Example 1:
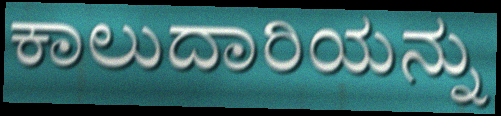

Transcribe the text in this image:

ಕಾಲುದಾರಿಯನ್ನು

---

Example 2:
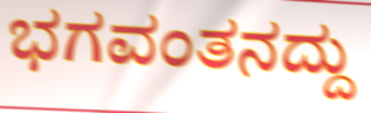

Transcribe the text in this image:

ಭಗವಂತನದ್ದು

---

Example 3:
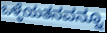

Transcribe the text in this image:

ಒಳ್ಳೆಯತನವನ್ನೂ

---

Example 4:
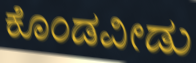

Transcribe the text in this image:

ಕೊಂಡವೀಡು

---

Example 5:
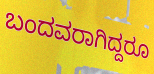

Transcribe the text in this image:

ಬಂದವರಾಗಿದ್ದರೂ